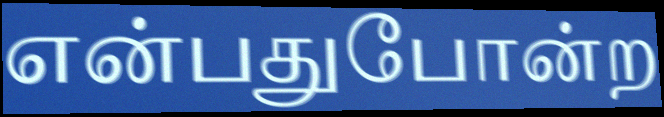
என்பதுபோன்ற